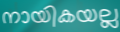
നായികയല്ല